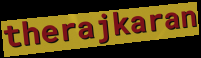
therajkaran